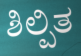
ಶಿಲ್ಪಿತ